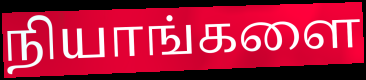
நியாங்களை